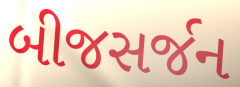
બીજસર્જન